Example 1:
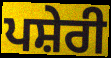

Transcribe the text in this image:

ਪਸ਼ੇਰੀ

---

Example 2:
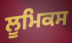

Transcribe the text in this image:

ਲੂਮਿਕਸ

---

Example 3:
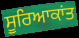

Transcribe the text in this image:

ਸੂਰਿਆਕਾਂਤ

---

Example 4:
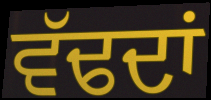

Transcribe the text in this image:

ਵੱਢਦਾਂ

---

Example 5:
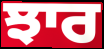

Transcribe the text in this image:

ਝਾਰ